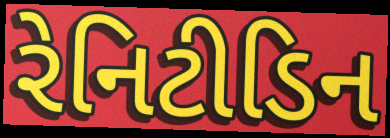
રેનિટીડિન